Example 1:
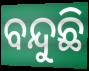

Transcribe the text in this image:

ବନ୍ଦୁଛି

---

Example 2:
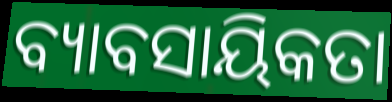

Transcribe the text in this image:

ବ୍ୟାବସାୟିକତା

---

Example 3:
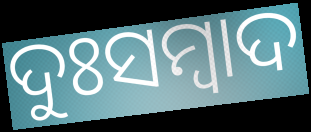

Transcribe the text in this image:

ଦୁଃସମ୍ୱାଦ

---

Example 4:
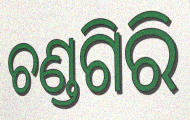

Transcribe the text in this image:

ଚଣ୍ଡଗିରି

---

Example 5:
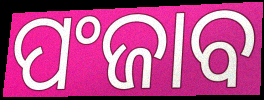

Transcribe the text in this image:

ପଂଜାବ